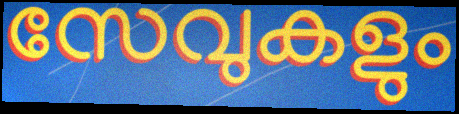
സേവുകളും